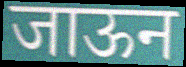
जाऊन